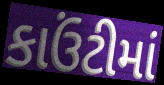
કાઉંટીમાં